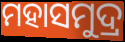
ମହାସମୁଦ୍ର